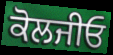
ਕੋਲਜੀਓ